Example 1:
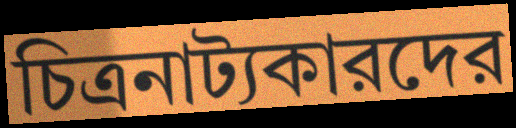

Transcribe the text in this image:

চিত্রনাট্যকারদের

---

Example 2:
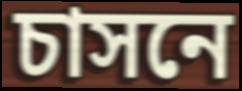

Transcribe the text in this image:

চাসনে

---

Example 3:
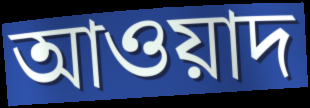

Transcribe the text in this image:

আওয়াদ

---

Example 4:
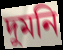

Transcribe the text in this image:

দুমনি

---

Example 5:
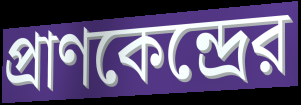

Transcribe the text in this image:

প্রাণকেন্দ্রের